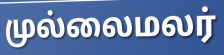
முல்லைமலர்